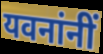
यवनांनीं